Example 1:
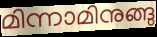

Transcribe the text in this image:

മിന്നാമിനുങ്ങു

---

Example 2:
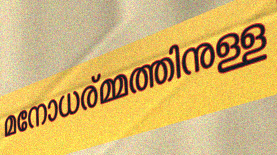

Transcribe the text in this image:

മനോധര്മ്മത്തിനുള്ള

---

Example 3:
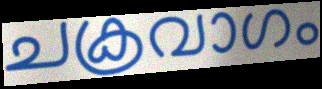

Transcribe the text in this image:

ചക്രവാഗം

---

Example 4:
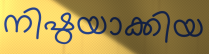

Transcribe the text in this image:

നിഷ്ഠയാക്കിയ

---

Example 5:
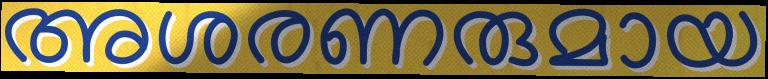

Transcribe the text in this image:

അശരണരുമായ